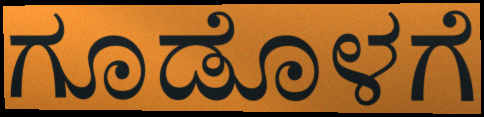
ಗೂಡೊಳಗೆ